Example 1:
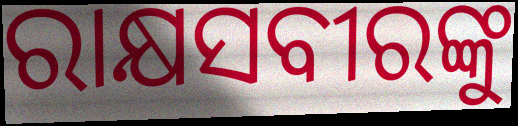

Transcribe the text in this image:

ରାକ୍ଷସବୀରଙ୍କୁ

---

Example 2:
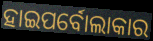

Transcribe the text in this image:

ହାଇପର୍ବୋଲାକାର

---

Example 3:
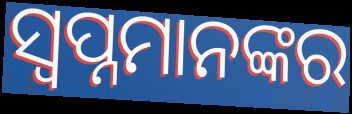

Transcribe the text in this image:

ସ୍ବପ୍ନମାନଙ୍କର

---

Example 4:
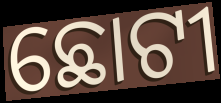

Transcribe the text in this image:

ଛୋଟୀ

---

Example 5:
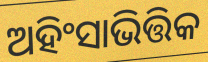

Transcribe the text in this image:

ଅହିଂସାଭିତ୍ତିକ